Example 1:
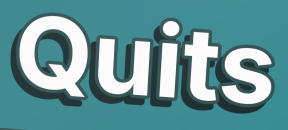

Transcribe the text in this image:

Quits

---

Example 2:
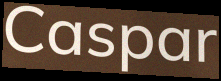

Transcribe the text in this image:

Caspar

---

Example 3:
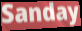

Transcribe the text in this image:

Sanday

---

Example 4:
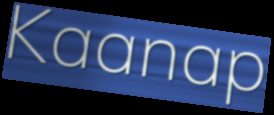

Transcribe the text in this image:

Kaanap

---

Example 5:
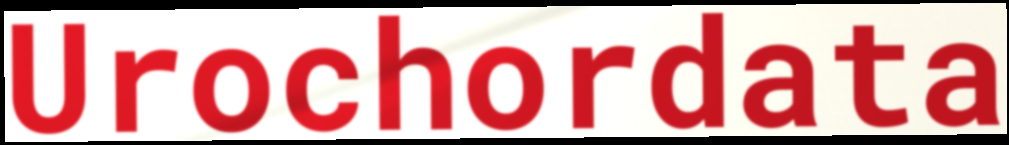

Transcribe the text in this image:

Urochordata